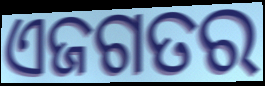
ଏଜଗତର